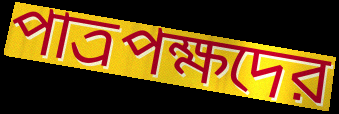
পাত্রপক্ষদের